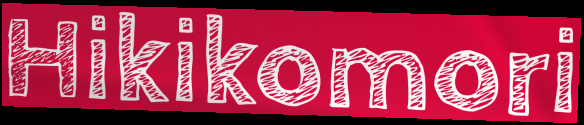
Hikikomori